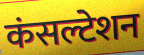
कंसल्टेशन